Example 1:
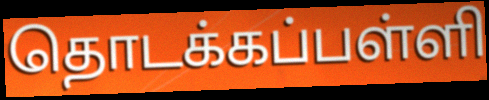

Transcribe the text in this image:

தொடக்கப்பள்ளி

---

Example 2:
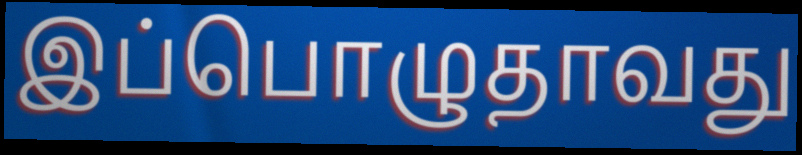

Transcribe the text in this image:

இப்பொழுதாவது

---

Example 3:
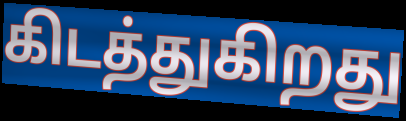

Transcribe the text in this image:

கிடத்துகிறது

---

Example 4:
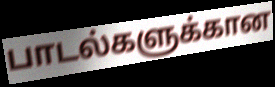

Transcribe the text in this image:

பாடல்களுக்கான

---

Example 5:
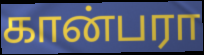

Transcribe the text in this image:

கான்பரா